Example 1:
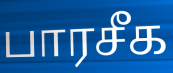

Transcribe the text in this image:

பாரசீக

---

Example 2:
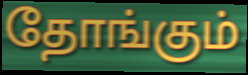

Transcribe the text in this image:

தோங்கும்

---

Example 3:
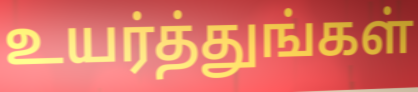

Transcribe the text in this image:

உயர்த்துங்கள்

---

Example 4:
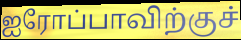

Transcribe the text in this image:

ஐரோப்பாவிற்குச்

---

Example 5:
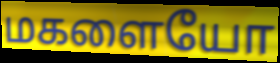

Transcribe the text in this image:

மகளையோ